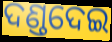
ଦଣ୍ଡଦେଇ